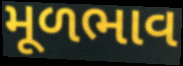
મૂળભાવ